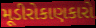
મૂડીરોકાણકારો